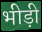
भीड़ी